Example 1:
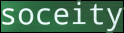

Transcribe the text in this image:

soceity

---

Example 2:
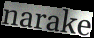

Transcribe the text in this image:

narake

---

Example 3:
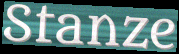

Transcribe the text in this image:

Stanze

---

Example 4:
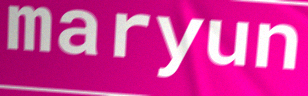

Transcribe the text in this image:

maryun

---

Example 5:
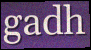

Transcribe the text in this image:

gadh